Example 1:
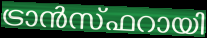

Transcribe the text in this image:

ട്രാൻസ്ഫറായി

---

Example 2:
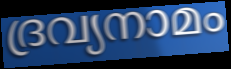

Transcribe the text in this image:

ദ്രവ്യനാമം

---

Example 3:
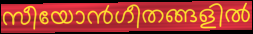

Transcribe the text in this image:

സീയോൻഗീതങ്ങളിൽ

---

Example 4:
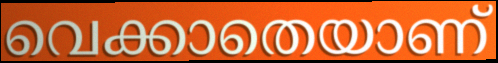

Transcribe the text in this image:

വെക്കാതെയാണ്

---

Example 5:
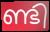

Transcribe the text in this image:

ണ്ടി